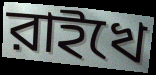
রাইখে